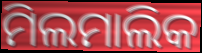
ମିଲମାଲିକ